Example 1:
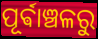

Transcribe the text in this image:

ପୂର୍ଵାଞ୍ଚଳରୁ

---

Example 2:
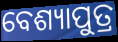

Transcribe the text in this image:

ବେଶ୍ୟାପୁତ୍ର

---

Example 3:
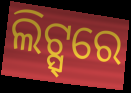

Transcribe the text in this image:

ଲିଟ୍ସ୍‌ରେ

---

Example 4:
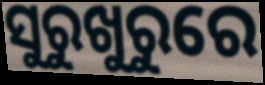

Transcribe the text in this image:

ସୁରୁଖୁରୁରେ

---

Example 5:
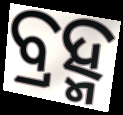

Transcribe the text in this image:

ବ୍ରହ୍ମ